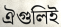
ঐগুলিই